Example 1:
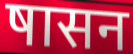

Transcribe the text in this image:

षासन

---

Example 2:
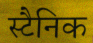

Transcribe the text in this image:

स्टैनिक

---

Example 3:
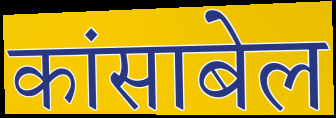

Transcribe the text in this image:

कांसाबेल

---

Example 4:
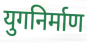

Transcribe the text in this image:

युगनिर्माण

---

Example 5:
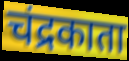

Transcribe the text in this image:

चंद्रकाता